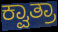
ಕ್ವಾತ್ರಾ